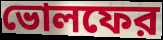
ভোলফের